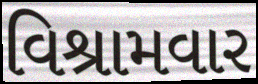
વિશ્રામવાર